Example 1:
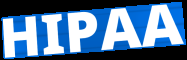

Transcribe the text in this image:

HIPAA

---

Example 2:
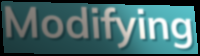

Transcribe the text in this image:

Modifying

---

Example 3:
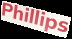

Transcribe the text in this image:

Phillips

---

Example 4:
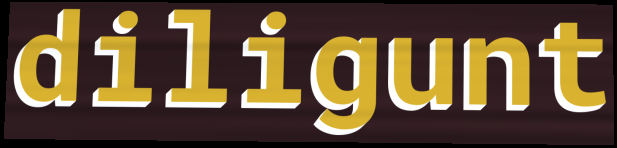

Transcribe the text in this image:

diligunt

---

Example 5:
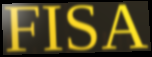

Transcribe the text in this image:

FISA